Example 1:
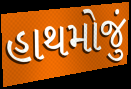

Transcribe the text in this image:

હાથમોજું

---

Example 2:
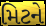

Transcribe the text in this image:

મિટને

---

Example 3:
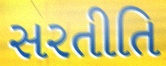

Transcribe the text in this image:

સરતીતિ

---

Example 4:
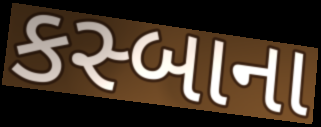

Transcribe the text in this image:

કસ્બાના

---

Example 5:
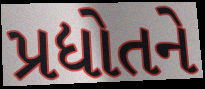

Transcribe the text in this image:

પ્રદ્યોતને